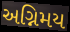
અગ્નિમય